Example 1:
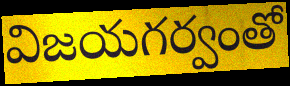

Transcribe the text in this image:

విజయగర్వంతో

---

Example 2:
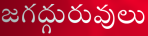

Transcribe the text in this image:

జగద్గురువులు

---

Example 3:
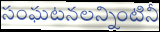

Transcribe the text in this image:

సంఘటనలన్నింటినీ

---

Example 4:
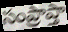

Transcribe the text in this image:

సంప్రాప్తా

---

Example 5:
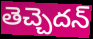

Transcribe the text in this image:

తెచ్చెదన్